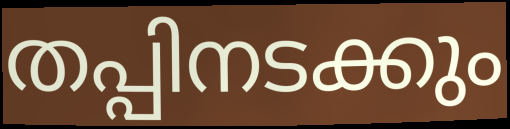
തപ്പിനടക്കും